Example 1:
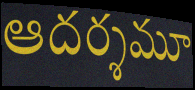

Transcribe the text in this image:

ఆదర్శమూ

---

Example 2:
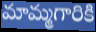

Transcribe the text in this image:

మామ్మగారికి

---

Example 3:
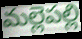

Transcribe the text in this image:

మల్లెపల్లి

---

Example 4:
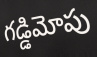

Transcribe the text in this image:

గడ్డిమోపు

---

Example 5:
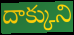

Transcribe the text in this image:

దాక్కుని